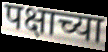
पक्षाच्या